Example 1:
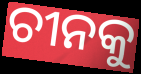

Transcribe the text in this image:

ଚୀନକୁ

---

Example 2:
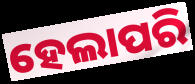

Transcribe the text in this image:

ହେଲାପରି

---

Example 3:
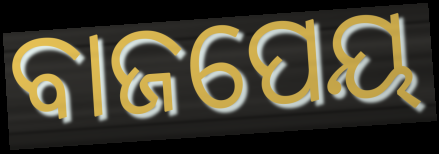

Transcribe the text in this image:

ବାଜପେୟ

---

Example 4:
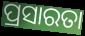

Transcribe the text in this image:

ପ୍ରସାରତା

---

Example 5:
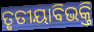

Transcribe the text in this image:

ତୃତୀୟାବିଭକ୍ତି